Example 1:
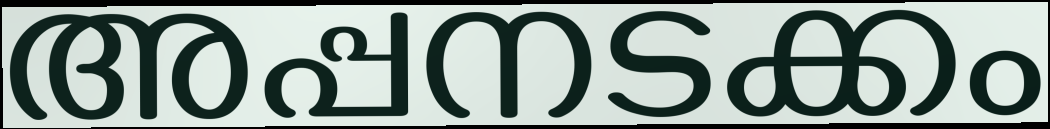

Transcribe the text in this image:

അപ്പനടക്കം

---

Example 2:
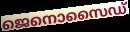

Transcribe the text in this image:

ജെനൊസൈഡ്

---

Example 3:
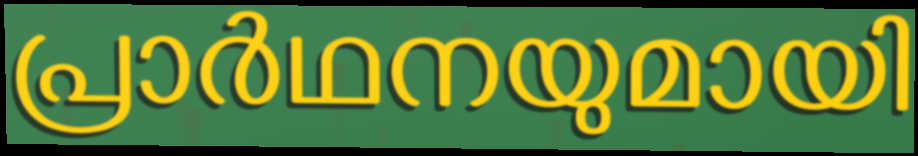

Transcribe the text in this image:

പ്രാർഥനയുമായി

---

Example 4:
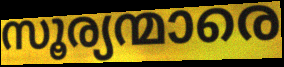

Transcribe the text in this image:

സൂര്യന്മാരെ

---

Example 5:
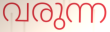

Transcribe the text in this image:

വരുന്ന